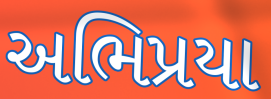
અભિપ્રયા